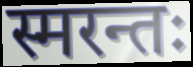
स्मरन्तः